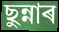
ছুন্নাৰ